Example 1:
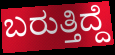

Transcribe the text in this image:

ಬರುತ್ತಿದ್ದೆ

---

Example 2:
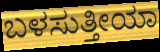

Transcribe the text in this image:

ಬಳಸುತ್ತೀಯಾ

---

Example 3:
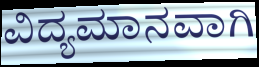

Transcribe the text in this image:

ವಿದ್ಯಮಾನವಾಗಿ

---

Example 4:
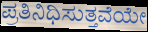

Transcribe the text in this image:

ಪ್ರತಿನಿಧಿಸುತ್ತವೆಯೇ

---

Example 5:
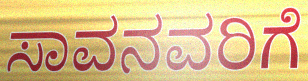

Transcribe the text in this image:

ಸಾವನವರಿಗೆ